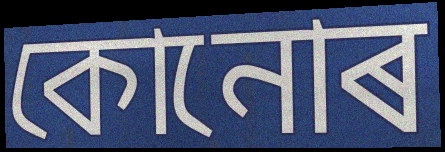
কোনোৰ